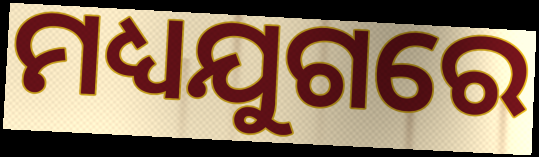
ମଧ୍ୟଯୁଗରେ